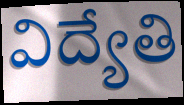
విద్యేతి